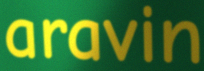
aravin